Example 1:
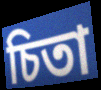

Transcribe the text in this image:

চিতা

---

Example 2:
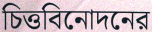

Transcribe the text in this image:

চিত্তবিনোদনের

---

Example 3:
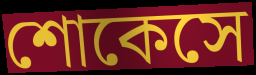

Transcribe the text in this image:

শোকেসে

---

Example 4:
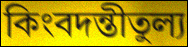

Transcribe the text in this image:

কিংবদন্তীতুল্য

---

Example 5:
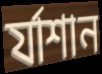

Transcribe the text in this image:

র্যাশান